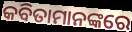
କବିତାମାନଙ୍କରେ